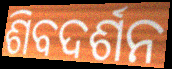
ଶିବଦର୍ଶନ